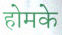
होमके